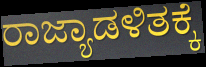
ರಾಜ್ಯಾಡಳಿತಕ್ಕೆ